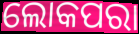
ଲୋକପରା